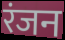
रंजन